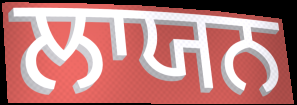
ਲਾਯਨ